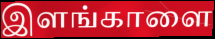
இளங்காளை